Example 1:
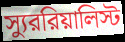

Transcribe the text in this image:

স্যুররিয়ালিস্ট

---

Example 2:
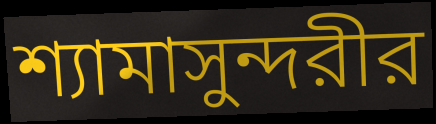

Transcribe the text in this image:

শ্যামাসুন্দরীর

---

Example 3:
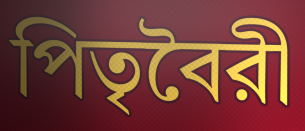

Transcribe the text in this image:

পিতৃবৈরী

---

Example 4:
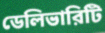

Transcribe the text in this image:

ডেলিভারিটি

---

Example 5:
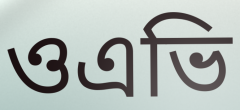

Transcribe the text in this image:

ওএভি